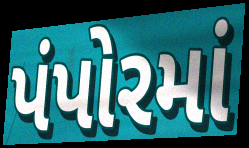
પંપોરમાં